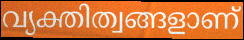
വ്യക്തിത്വങ്ങളാണ്